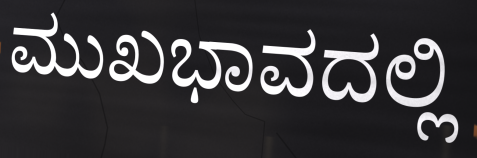
ಮುಖಭಾವದಲ್ಲಿ